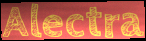
Alectra